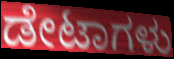
ಡೇಟಾಗಳು